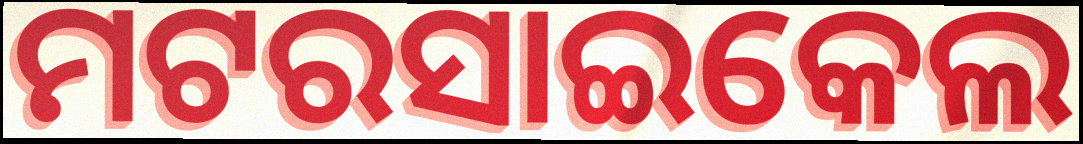
ମଟରସାଇକେଲ